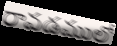
రావడములో